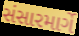
સંસારમાર્ગે